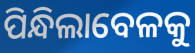
ପିନ୍ଧିଲାବେଳକୁ